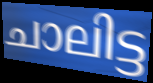
ചാലിട്ട